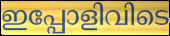
ഇപ്പോളിവിടെ